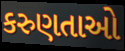
કરુણતાઓ